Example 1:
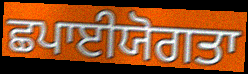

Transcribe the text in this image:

ਛਪਾਈਯੋਗਤਾ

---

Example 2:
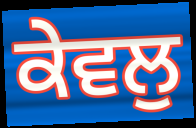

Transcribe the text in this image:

ਕੇਵਲੁ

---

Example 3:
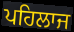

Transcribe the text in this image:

ਪਹਿਲਾਜ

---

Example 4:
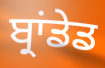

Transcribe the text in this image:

ਬ੍ਰਾਂਡੇਡ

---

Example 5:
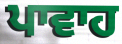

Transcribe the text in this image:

ਪਾਵਾਹ